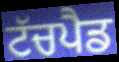
ਟੱਚਪੈਡ